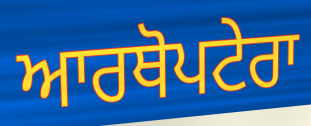
ਆਰਥੋਪਟੇਰਾ